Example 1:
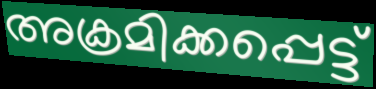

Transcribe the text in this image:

അക്രമിക്കപ്പെട്ട്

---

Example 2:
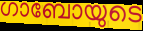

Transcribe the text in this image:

ഗാബോയുടെ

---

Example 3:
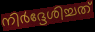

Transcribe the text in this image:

നിർദ്ദേശിച്ചത്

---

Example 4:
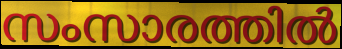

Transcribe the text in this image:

സംസാരത്തിൽ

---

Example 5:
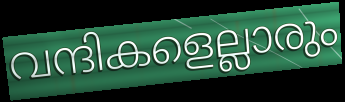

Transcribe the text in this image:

വന്ദികളെല്ലാരും